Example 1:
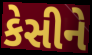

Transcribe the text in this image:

કેસીને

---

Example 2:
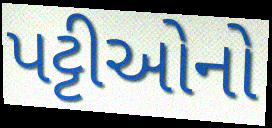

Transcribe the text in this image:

પટ્ટીઓનો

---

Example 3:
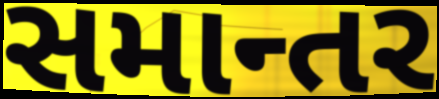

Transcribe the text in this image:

સમાન્તર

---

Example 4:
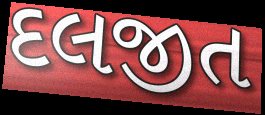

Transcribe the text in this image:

દલજીત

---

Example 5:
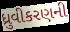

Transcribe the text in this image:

ધ્રુવીકરણની